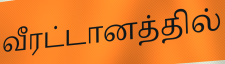
வீரட்டானத்தில்